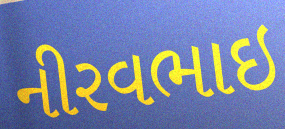
નીરવભાઇ